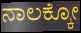
ನಾಲಕ್ಕೋ